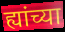
ह्यांच्या